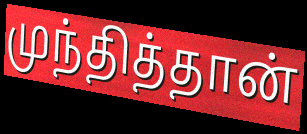
முந்தித்தான்